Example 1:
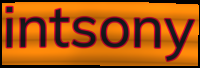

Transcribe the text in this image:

intsony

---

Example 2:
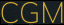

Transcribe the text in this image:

CGM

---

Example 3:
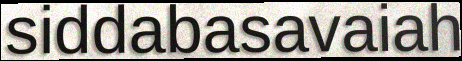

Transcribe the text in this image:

siddabasavaiah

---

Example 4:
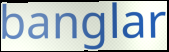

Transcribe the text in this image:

banglar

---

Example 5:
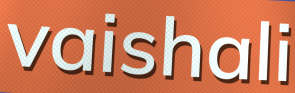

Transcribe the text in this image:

vaishali